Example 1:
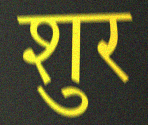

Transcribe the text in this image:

शुर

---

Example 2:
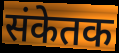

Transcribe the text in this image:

संकेतक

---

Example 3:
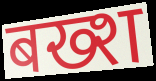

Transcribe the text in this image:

बख्श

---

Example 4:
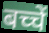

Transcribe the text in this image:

बच्चें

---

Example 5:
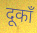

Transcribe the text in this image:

दूकाँ